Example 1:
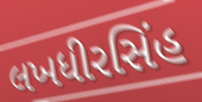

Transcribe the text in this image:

લખધીરસિંહ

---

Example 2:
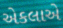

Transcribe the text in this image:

એકલાએ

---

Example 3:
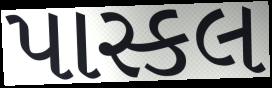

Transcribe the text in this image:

પાસ્કલ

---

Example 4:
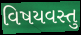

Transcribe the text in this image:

વિષયવસ્તુ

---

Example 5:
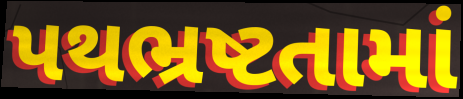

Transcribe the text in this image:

પથભ્રષ્ટતામાં